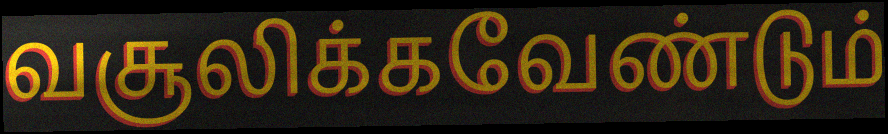
வசூலிக்கவேண்டும்